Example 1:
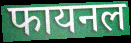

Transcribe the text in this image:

फायनल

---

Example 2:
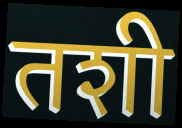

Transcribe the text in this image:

तशी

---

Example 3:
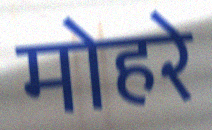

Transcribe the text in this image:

मोहरे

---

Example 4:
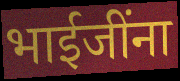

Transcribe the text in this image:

भाईजींना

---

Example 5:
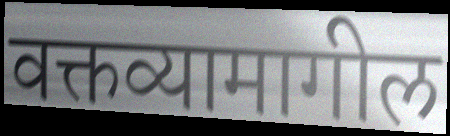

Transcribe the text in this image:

वक्तव्यामागील